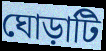
ঘোড়াটি